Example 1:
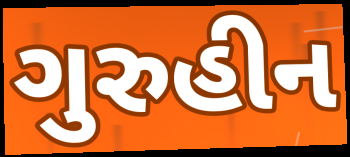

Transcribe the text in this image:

ગુરુહીન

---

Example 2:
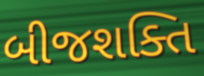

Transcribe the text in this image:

બીજશક્તિ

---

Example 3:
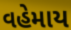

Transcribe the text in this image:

વહેમાય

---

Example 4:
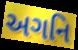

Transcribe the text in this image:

અગનિ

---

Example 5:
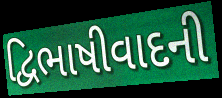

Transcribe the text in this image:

દ્વિભાષીવાદની